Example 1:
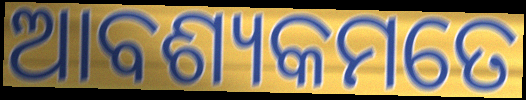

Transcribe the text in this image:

ଆବଶ୍ୟକମତେ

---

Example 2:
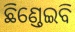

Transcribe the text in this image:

ଛିଣ୍ଡେଇବି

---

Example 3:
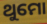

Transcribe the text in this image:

ଥୁମୋ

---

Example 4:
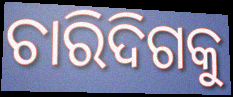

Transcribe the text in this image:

ଚାରିଦିଗକୁ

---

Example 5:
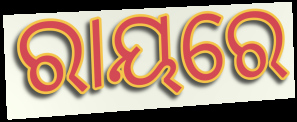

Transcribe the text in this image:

ରାୟରେ